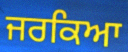
ਜਰਕਿਆ